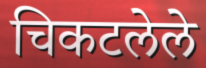
चिकटलेले